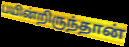
பயின்றிருந்தான்